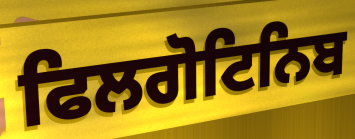
ਫਿਲਗੋਟਿਨਿਬ